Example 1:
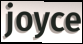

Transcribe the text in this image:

joyce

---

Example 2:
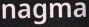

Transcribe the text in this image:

nagma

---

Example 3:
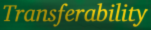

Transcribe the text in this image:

Transferability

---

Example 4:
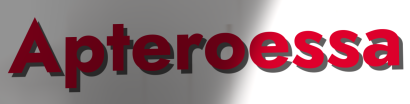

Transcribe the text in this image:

Apteroessa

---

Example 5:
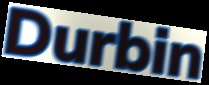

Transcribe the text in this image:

Durbin